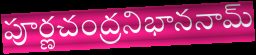
పూర్ణచంద్రనిభాననామ్